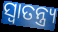
ସ୍ଵାତନ୍ତ୍ର୍ୟ